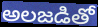
అలజడితో